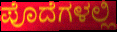
ಪೊದೆಗಳಲ್ಲಿ